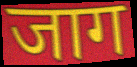
जाग